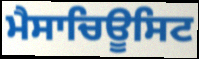
ਮੈਸਾਚਿਊਸਿਟ